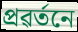
প্ৰৱৰ্তনে